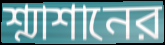
শ্মাশানের